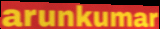
arunkumar